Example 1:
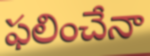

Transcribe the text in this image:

ఫలించేనా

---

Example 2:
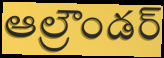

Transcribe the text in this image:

ఆల్రౌండర్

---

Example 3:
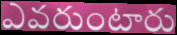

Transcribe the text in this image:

ఎవరుంటారు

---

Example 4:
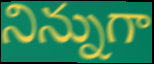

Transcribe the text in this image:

నిన్నుగా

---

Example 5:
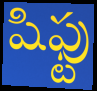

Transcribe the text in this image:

షిఫ్టు